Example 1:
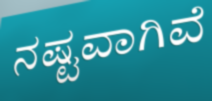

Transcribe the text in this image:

ನಷ್ಟವಾಗಿವೆ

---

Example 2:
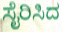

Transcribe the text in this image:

ಸೈರಿಸಿದ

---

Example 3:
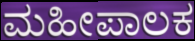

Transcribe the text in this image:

ಮಹೀಪಾಲಕ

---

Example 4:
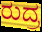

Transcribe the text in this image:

ರುದ್ರ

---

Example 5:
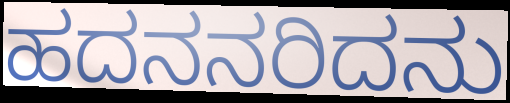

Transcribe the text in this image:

ಹದನನರಿದನು